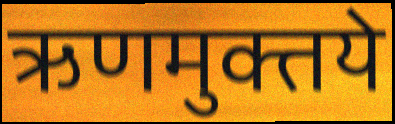
ऋणमुक्तये